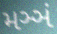
મઞ્ઞં